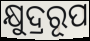
କ୍ଷୁଦ୍ରରୂପ